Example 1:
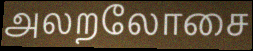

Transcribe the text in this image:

அலறலோசை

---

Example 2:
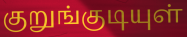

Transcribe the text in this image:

குறுங்குடியுள்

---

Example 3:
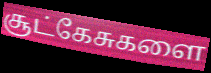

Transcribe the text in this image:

சூட்கேசுகளை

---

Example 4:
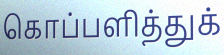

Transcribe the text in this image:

கொப்பளித்துக்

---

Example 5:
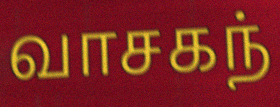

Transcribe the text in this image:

வாசகந்